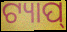
ଟ୍ୟାପ୍